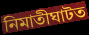
নিমাতীঘাটত